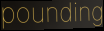
pounding